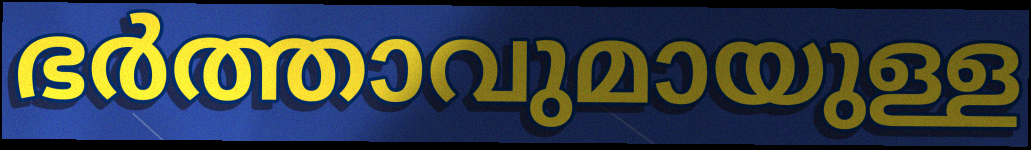
ഭർത്താവുമായുള്ള